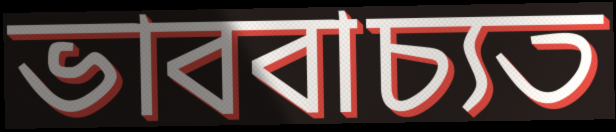
ভাববাচ্যত